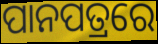
ପାନପତ୍ରରେ